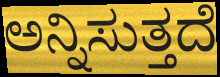
ಅನ್ನಿಸುತ್ತದೆ